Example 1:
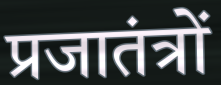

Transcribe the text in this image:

प्रजातंत्रों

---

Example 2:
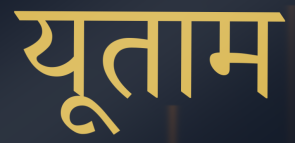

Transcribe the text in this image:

यूताम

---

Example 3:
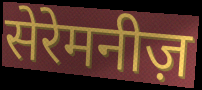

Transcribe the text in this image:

सेरेमनीज़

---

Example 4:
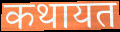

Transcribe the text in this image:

कथायत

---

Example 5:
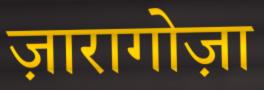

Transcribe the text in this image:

ज़ारागोज़ा